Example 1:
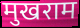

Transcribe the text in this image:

मुखराम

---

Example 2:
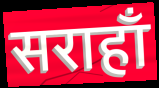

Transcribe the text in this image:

सराहाँ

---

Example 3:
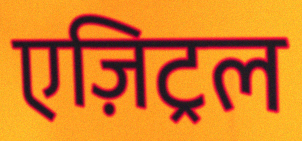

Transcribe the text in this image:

एज़िट्रल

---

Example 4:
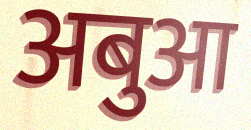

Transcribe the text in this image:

अबुआ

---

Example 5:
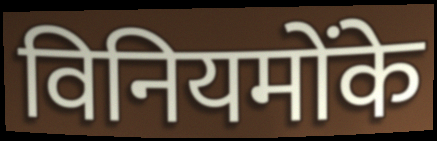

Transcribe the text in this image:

विनियमोंके